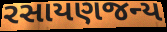
રસાયણજન્ય